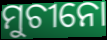
ମୁଚୀନୋ